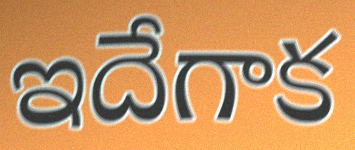
ఇదేగాక